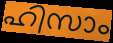
ഹിസാം